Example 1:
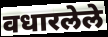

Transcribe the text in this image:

वधारलेले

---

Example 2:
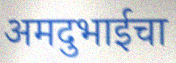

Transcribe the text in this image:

अमदुभाईचा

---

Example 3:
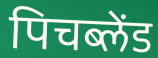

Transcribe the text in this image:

पिचब्लेंड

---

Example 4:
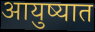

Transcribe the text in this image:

आयुष्यात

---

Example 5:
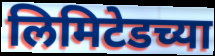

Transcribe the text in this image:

लिमिटेडच्या